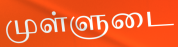
முள்ளுடை